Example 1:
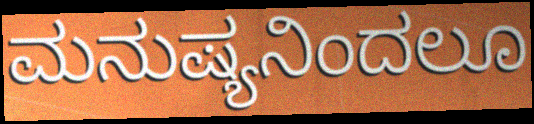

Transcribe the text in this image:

ಮನುಷ್ಯನಿಂದಲೂ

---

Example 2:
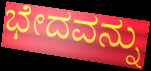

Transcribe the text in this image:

ಭೇದವನ್ನು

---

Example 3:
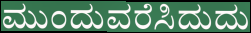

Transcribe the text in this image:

ಮುಂದುವರೆಸಿದುದು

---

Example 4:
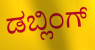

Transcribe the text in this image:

ಡಬ್ಲಿಂಗ್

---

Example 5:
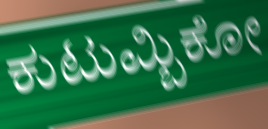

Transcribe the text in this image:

ಕುಟುಮ್ಬಿಕೋ